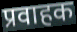
प्रवाहक